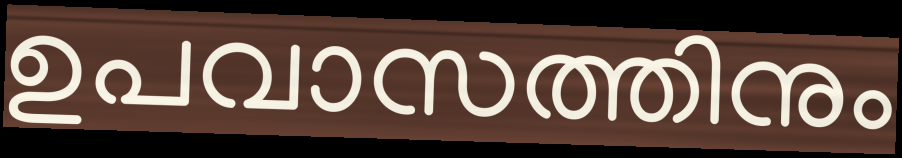
ഉപവാസത്തിനും